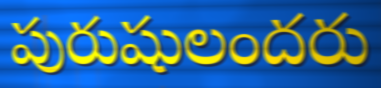
పురుషులందరు